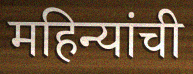
महिन्यांची